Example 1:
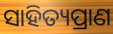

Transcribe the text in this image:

ସାହିତ୍ୟପ୍ରାଣ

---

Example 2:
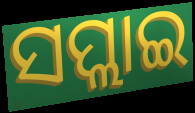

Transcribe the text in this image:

ସପ୍ଲାଇ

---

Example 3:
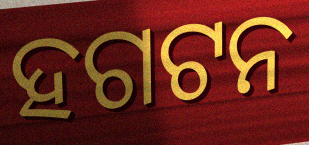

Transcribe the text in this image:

ହଗଟନ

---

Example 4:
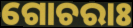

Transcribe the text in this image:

ଗୋଚରାଃ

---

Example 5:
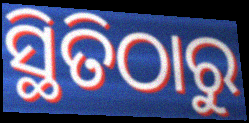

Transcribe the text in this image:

ସ୍ଥିତିଠାରୁ